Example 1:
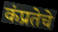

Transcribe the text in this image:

कंप्रतेचे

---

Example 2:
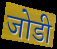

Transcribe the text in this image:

जोडी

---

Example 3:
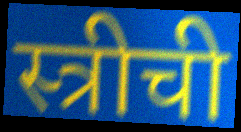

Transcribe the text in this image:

स्त्रीची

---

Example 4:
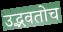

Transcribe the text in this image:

उद्भवतोच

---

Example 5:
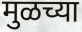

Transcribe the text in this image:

मुळच्या